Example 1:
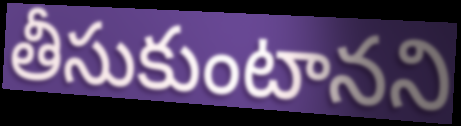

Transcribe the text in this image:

తీసుకుంటానని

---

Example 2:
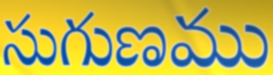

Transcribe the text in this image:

సుగుణము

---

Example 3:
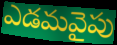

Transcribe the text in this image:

ఎడమవైపు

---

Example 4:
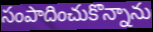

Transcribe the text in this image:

సంపాదించుకొన్నాను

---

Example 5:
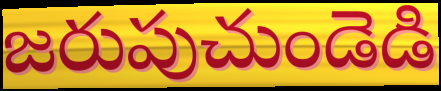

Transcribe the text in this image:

జరుపుచుండెడి